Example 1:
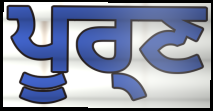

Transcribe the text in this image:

ਪੂਰ੍ਣ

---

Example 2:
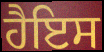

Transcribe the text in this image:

ਹੈਇਸ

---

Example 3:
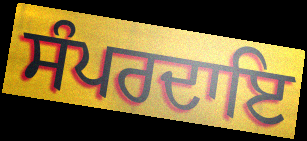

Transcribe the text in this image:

ਸੰਪਰਦਾਇ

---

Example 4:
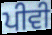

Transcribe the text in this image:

ਪੀਵੀ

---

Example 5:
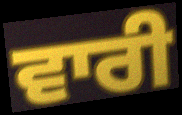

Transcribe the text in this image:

ਵਾਰੀ